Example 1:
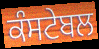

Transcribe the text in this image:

ਕੰਸਟੇਬਲ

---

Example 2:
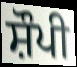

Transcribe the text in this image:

ਸ਼ੌਪੀ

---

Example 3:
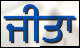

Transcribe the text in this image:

ਜੀਤਾ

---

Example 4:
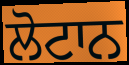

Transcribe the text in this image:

ਲੋਟਾਨ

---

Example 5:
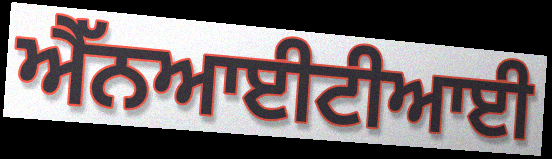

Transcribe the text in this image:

ਐੱਨਆਈਟੀਆਈ